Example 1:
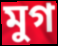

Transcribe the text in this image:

মুগ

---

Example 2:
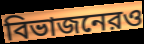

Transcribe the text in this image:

বিভাজনেরও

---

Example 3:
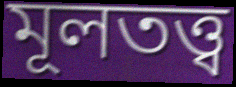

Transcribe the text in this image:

মূলতত্ত্ব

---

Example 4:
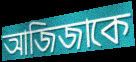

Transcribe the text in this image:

আজিজাকে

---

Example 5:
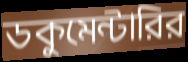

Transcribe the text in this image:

ডকুমেন্টারির